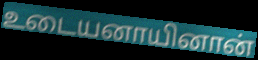
உடையனாயினான்